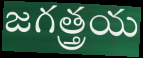
జగత్త్రయ